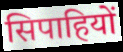
सिपाहियों